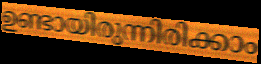
ഉണ്ടായിരുന്നിരിക്കാം